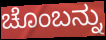
ಚೊಂಬನ್ನು